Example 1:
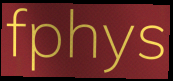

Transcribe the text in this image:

fphys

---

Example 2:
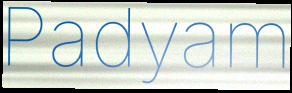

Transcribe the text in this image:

Padyam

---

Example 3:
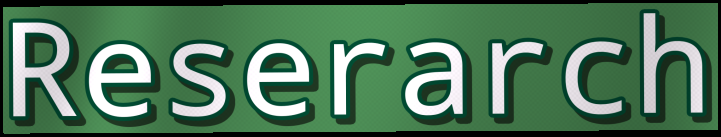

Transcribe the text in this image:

Reserarch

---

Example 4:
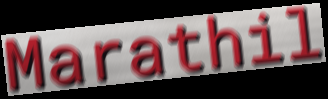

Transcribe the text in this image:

Marathil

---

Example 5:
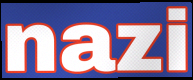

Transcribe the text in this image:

nazi